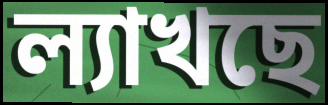
ল্যাখছে